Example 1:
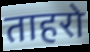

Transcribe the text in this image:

ताहरो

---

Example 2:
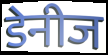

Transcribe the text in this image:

डेनीज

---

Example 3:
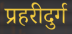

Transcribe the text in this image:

प्रहरीदुर्ग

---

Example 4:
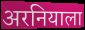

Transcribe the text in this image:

अरनियाला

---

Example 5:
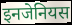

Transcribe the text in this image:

इनजेनियस